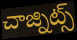
చాజ్నిట్స్